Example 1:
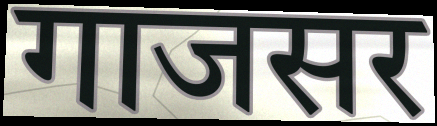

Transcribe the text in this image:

गाजसर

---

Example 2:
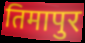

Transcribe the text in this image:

तिमापुर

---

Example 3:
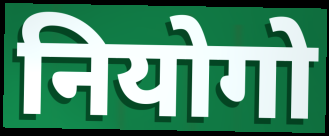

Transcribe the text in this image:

नियोगो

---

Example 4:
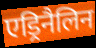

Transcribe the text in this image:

एड्रिनैलिन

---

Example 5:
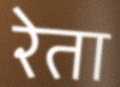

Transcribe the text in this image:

रेता